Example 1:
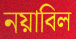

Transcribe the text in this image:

নয়াবিল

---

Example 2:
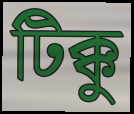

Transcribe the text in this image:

টিক্কু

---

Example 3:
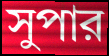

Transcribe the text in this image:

সুপার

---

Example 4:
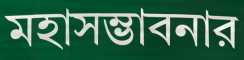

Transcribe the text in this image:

মহাসম্ভাবনার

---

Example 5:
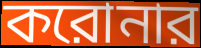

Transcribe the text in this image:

করোনার